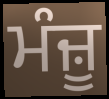
ਮੰਜ਼ੂ